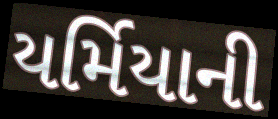
યર્મિયાની